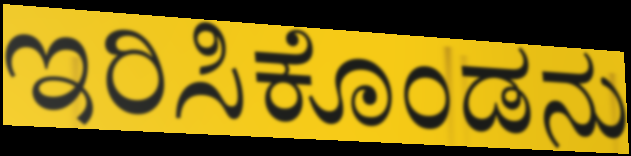
ಇರಿಸಿಕೊಂಡನು